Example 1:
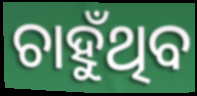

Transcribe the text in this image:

ଚାହୁଁଥିବ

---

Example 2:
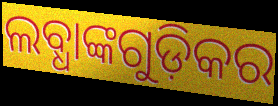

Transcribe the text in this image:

ଲବ୍ଧାଙ୍କଗୁଡ଼ିକର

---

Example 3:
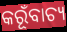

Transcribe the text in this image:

କରୂଁବାଚ୍ୟ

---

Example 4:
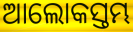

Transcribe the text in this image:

ଆଲୋକସ୍ତମ୍ଭ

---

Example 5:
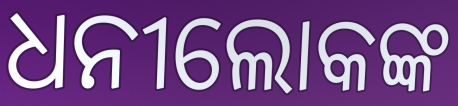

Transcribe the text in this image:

ଧନୀଲୋକଙ୍କ